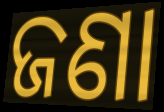
ଜଣା